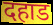
दहाड